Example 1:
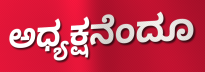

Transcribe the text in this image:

ಅಧ್ಯಕ್ಷನೆಂದೂ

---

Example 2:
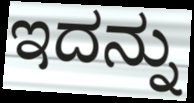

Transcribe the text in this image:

ಇದನ್ನು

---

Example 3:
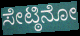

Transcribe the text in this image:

ಸೇಟ್ಠಿನೋ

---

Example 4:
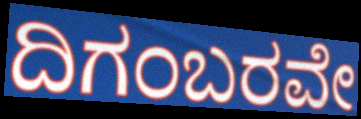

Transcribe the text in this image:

ದಿಗಂಬರವೇ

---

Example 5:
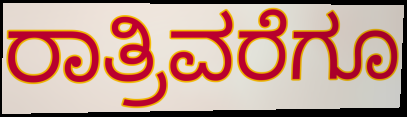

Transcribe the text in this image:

ರಾತ್ರಿವರೆಗೂ